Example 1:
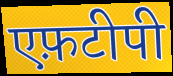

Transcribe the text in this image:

एफ़टीपी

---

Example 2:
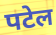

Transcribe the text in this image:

पटेल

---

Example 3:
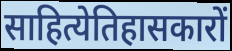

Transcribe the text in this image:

साहित्येतिहासकारों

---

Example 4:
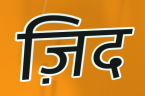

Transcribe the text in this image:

ज़िद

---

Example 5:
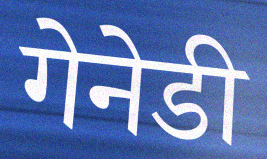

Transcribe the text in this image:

गेनेडी